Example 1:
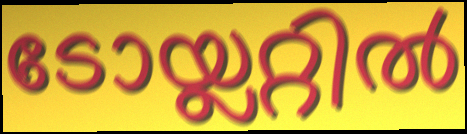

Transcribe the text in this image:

ടോയ്ലറ്റിൽ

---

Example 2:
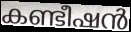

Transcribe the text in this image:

കണ്ടീഷൻ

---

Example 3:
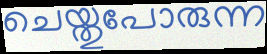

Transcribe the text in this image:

ചെയ്തുപോരുന്ന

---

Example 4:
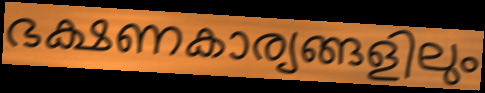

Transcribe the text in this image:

ഭക്ഷണകാര്യങ്ങളിലും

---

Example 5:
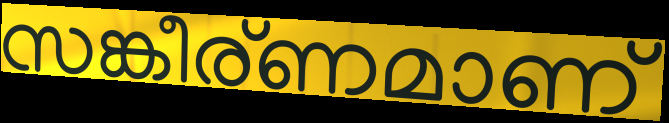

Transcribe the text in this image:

സങ്കീര്ണമാണ്